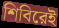
শিবিরেই